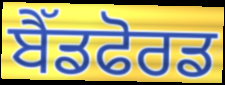
ਬੈੱਡਫੋਰਡ